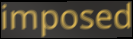
imposed